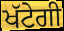
ਖੱਟੇਗੀ